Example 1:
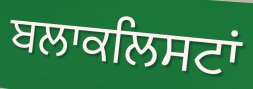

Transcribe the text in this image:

ਬਲਾਕਲਿਸਟਾਂ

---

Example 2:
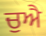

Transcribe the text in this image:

ਚੁਐ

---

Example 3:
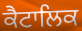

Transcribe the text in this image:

ਕੈਟਾਲਿਕ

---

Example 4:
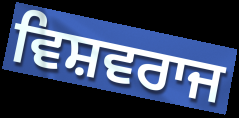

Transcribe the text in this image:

ਵਿਸ਼ਵਰਾਜ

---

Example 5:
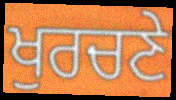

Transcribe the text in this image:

ਖੁਰਚਣੇ